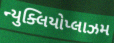
ન્યુક્લિયોપ્લાઝમ